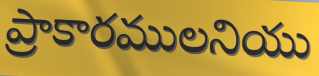
ప్రాకారములనియు